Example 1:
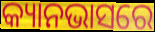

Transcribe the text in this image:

କ୍ୟାନଭାସରେ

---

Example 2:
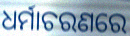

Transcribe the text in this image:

ଧର୍ମାଚରଣରେ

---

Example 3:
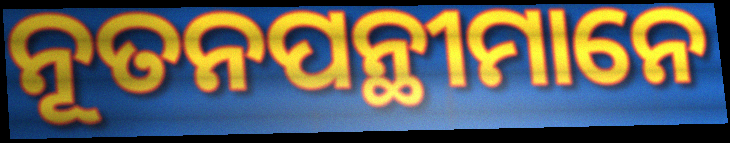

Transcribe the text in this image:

ନୂତନପନ୍ଥୀମାନେ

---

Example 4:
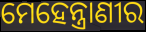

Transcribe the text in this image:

ମେହେନ୍ତ୍ରାଣୀର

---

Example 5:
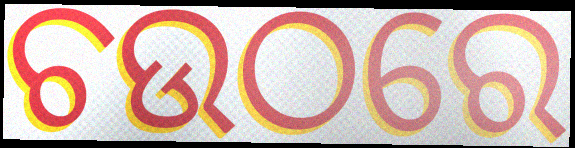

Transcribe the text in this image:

ଚଉଠରେ